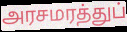
அரசமரத்துப்